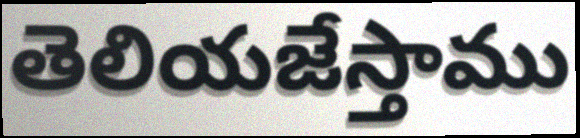
తెలియజేస్తాము